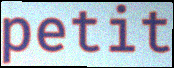
petit